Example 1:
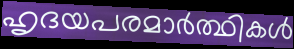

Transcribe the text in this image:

ഹൃദയപരമാർത്ഥികൾ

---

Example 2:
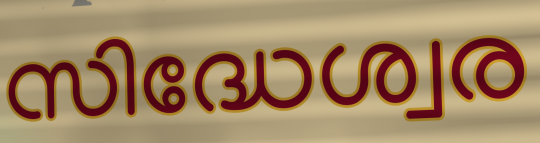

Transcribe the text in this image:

സിദ്ധേശ്വര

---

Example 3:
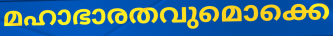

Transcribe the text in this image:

മഹാഭാരതവുമൊക്കെ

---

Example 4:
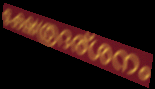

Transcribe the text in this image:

ക്ഷേത്രദര്ശനം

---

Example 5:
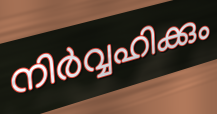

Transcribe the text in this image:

നിർവ്വഹിക്കും